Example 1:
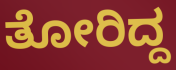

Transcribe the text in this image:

ತೋರಿದ್ದ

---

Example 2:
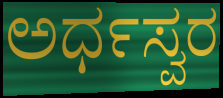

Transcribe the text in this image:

ಅರ್ಧಸ್ವರ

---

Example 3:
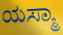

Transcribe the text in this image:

ಯಸ್ಮಾ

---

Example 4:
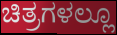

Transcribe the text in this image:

ಚಿತ್ರಗಳಲ್ಲೂ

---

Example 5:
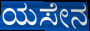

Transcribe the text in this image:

ಯಸೇನ